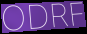
ODRF